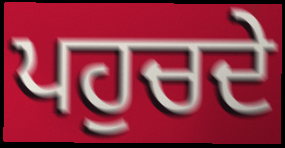
ਪਹੁਚਦੇ